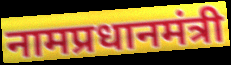
नामप्रधानमंत्री